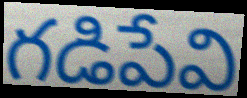
గడిపేవి